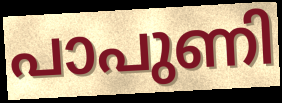
പാപുണി